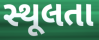
સ્થૂલતા